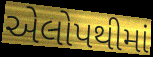
એલોપથીમાં